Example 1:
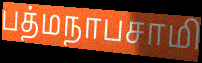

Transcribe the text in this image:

பத்மநாபசாமி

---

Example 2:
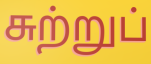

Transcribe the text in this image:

சுற்றுப்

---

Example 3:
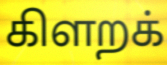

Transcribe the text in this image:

கிளறக்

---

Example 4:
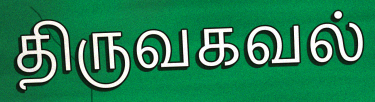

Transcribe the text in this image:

திருவகவல்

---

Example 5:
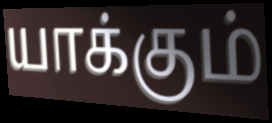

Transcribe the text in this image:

யாக்கும்